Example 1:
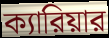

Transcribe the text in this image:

ক্যারিয়ার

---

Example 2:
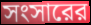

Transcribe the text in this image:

সংসারের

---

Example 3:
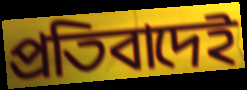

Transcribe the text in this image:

প্রতিবাদেই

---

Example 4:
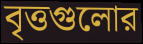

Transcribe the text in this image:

বৃত্তগুলোর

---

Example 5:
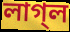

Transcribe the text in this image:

লাগ্‌ল